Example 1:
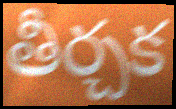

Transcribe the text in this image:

తీర్చక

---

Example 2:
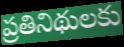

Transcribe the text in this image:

ప్రతినిథులకు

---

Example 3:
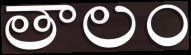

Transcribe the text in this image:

తాలం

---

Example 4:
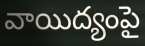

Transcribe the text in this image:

వాయిద్యంపై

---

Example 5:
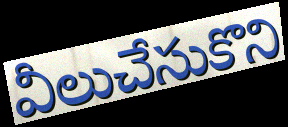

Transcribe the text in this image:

వీలుచేసుకొని